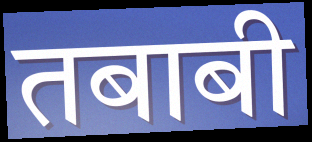
तबाबी